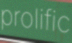
prolific